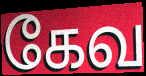
கேவ